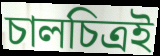
চালচিত্রই